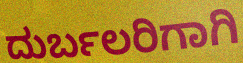
ದುರ್ಬಲರಿಗಾಗಿ